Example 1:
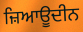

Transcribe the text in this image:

ਜ਼ਿਆਊਦੀਨ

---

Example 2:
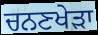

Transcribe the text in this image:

ਚਨਣਖੇੜਾ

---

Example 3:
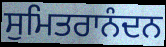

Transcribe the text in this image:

ਸੁਮਿਤਰਾਨੰਦਨ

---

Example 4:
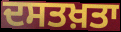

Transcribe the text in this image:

ਦਸਤਖ਼ਤਾ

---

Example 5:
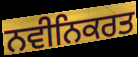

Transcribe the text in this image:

ਨਵੀਨਿਕਰਤ